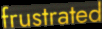
frustrated